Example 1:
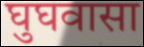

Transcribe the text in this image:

घुघवासा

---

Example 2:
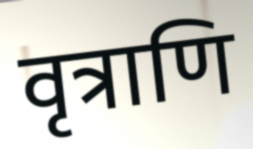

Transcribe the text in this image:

वृत्राणि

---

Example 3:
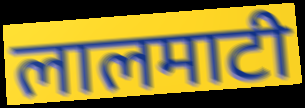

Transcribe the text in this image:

लालमाटी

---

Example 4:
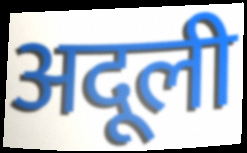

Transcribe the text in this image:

अदूली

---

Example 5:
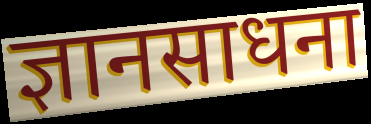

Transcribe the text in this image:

ज्ञानसाधना